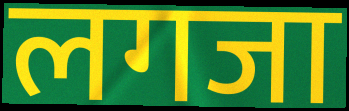
लगजा